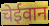
चेईवान